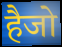
हैजो